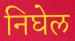
निघेल